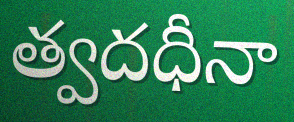
త్వదధీనా